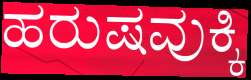
ಹರುಷವುಕ್ಕಿ